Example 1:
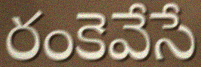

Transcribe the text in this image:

రంకెవేసే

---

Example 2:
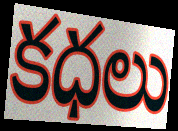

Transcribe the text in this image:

కధలు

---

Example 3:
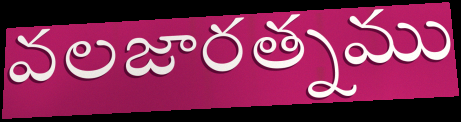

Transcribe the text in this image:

వలజారత్నము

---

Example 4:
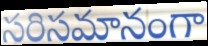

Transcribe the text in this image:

సరిసమానంగా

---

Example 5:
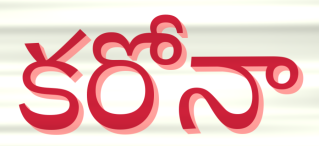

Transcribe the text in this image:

కరోనా